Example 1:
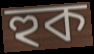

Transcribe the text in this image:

হুক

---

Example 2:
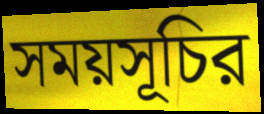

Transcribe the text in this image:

সময়সূচির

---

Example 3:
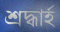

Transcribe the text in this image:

শ্রদ্ধার্হ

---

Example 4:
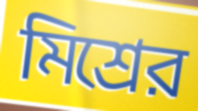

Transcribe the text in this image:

মিশ্রের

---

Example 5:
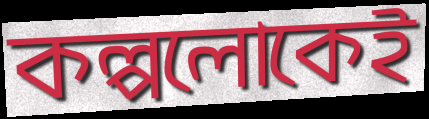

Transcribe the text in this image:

কল্পলোকেই